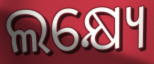
ଲକ୍ଷ୍ୟେ